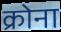
क्रोना